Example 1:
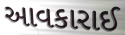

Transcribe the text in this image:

આવકારાઈ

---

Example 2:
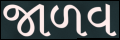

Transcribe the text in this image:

જાળવ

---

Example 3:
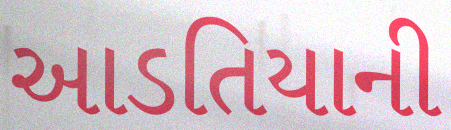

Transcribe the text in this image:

આડતિયાની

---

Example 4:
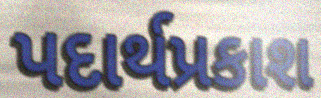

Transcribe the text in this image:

પદાર્થપ્રકાશ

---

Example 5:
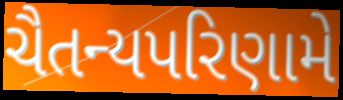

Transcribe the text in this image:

ચૈતન્યપરિણામે